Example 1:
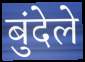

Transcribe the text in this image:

बुंदेले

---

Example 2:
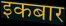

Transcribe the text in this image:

इकबार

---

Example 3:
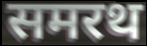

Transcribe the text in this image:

समरथ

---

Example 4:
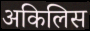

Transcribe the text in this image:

अकिलिस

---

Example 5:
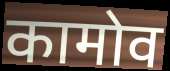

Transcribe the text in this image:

कामोव